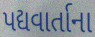
પદ્યવાર્તાના